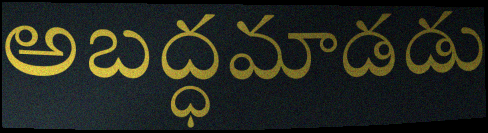
అబద్ధమాడడు